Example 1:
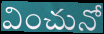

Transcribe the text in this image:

వించునో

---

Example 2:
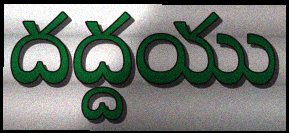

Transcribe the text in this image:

దద్దయు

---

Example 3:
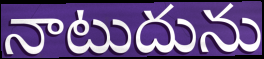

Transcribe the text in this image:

నాటుదును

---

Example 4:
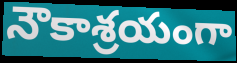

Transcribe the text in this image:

నౌకాశ్రయంగా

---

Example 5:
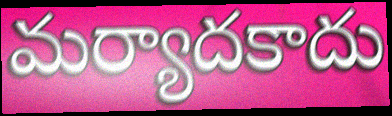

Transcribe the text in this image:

మర్యాదకాదు